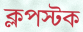
ক্লপস্টক